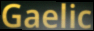
Gaelic